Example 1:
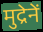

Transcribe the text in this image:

मुद्रेनें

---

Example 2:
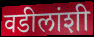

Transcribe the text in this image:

वडीलांशी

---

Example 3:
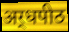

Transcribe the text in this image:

अर्धपीठ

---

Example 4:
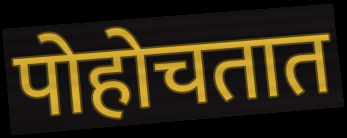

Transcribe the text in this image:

पोहोचतात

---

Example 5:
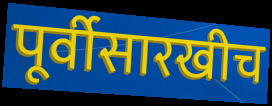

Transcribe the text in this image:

पूर्वीसारखीच